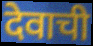
देवाची